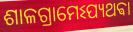
ଶାଳଗ୍ରାମେଽପ୍ଯଥଵା